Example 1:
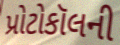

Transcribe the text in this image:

પ્રોટોકૉલની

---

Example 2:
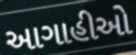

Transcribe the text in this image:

આગાહીઓ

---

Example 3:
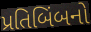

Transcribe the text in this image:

પ્રતિબિંબનો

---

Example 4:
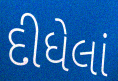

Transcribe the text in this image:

દીધેલાં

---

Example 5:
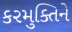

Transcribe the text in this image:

કરમુક્તિને